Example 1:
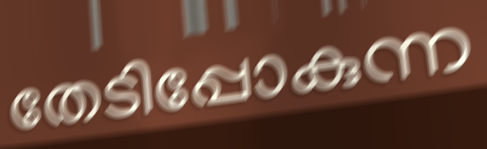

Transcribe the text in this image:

തേടിപ്പോകുന്ന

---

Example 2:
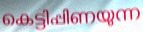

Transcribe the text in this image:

കെട്ടിപ്പിണയുന്ന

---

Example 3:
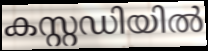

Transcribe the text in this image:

കസ്റ്റഡിയിൽ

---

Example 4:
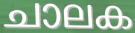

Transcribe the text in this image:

ചാലക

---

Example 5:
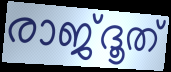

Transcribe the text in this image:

രാജ്ദൂത്